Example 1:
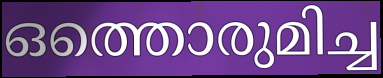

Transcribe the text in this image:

ഒത്തൊരുമിച്ച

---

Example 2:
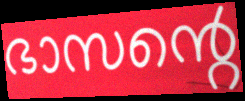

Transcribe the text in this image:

ഭാസന്റെ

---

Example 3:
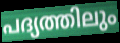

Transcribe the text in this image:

പദ്യത്തിലും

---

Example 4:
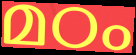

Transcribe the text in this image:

മഠം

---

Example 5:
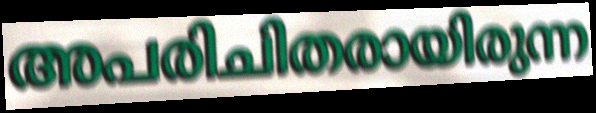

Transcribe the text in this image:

അപരിചിതരായിരുന്ന